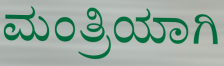
ಮಂತ್ರಿಯಾಗಿ